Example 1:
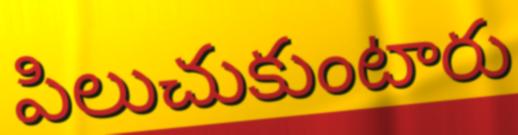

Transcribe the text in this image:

పిలుచుకుంటారు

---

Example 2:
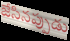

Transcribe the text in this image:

జేసినప్పుడు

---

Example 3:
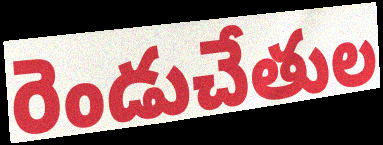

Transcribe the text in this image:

రెండుచేతుల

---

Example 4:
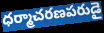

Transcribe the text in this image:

ధర్మాచరణపరుడై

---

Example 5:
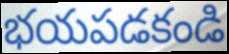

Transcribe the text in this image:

భయపడకండి